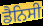
ਡੈਨਿਸੀ